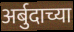
अर्बुदाच्या